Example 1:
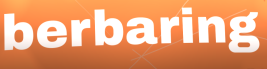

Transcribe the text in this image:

berbaring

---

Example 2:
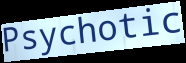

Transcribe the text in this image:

Psychotic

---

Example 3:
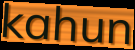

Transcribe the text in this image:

kahun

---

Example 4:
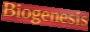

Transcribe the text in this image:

Biogenesis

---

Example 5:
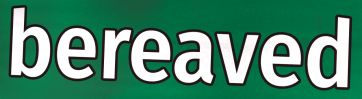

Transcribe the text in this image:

bereaved